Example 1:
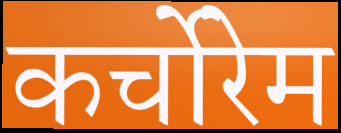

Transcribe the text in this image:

कर्चोरेम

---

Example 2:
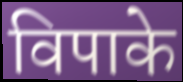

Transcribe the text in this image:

विपाके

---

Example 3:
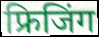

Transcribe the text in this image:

फ्रिजिंग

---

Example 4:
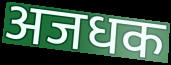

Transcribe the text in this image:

अजधक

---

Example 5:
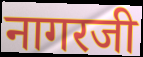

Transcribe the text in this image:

नागरजी